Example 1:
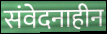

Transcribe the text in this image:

संवेदनाहीन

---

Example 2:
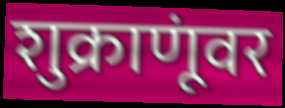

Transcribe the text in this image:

शुक्राणूंवर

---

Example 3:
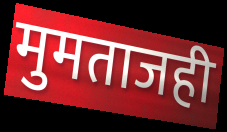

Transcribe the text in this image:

मुमताजही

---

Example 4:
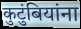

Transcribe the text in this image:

कुटुंबियांना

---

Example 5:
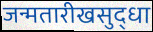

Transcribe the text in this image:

जन्मतारीखसुद्धा